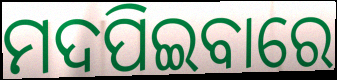
ମଦପିଇବାରେ